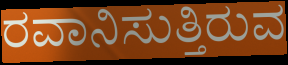
ರವಾನಿಸುತ್ತಿರುವ